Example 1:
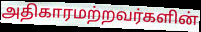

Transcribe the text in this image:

அதிகாரமற்றவர்களின்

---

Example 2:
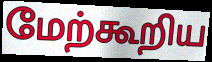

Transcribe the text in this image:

மேற்கூறிய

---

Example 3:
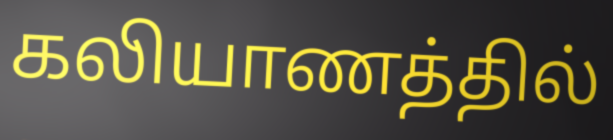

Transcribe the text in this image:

கலியாணத்தில்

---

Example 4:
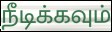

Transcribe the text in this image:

நீடிக்கவும்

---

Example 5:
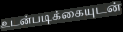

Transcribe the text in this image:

உடன்படிக்கையுடன்